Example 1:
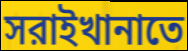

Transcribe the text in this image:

সরাইখানাতে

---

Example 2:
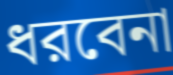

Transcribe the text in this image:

ধরবেনা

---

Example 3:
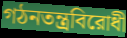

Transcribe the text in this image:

গঠনতন্ত্রবিরোধী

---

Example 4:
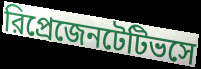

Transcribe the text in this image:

রিপ্রেজেনটেটিভসে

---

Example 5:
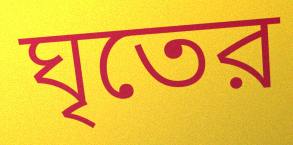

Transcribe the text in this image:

ঘৃতের